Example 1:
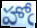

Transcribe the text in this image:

హోఁ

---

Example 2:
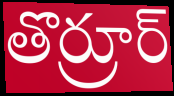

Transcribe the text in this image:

తొర్రూర్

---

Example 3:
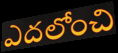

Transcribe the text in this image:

ఎదలోంచి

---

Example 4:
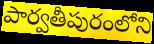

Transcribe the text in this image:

పార్వతీపురంలోని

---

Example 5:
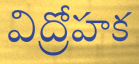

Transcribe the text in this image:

విద్రోహక